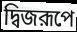
দ্বিজরূপে